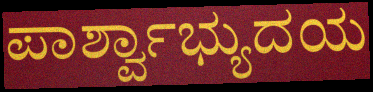
ಪಾರ್ಶ್ವಾಭ್ಯುದಯ